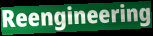
Reengineering